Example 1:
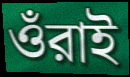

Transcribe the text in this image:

ওঁরাই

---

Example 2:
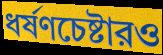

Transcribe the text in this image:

ধর্ষণচেষ্টারও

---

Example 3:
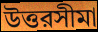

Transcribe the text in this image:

উত্তরসীমা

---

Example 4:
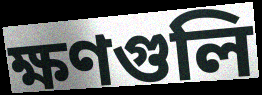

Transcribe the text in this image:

ক্ষণগুলি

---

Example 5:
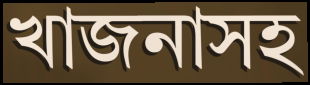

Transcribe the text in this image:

খাজনাসহ